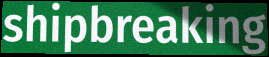
shipbreaking